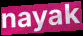
nayak